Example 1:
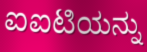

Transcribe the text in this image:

ಐಐಟಿಯನ್ನು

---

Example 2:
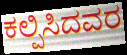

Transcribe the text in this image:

ಕಲ್ಪಿಸಿದವರ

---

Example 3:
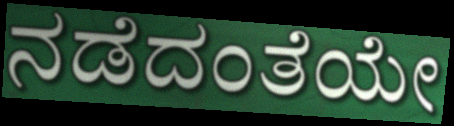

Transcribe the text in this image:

ನಡೆದಂತೆಯೇ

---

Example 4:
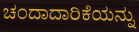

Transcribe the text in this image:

ಚಂದಾದಾರಿಕೆಯನ್ನು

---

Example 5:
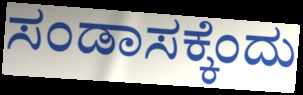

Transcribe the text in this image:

ಸಂಡಾಸಕ್ಕೆಂದು